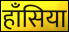
हाँसिया